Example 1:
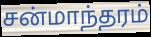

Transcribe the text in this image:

சன்மாந்தரம்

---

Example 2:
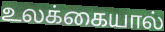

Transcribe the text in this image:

உலக்கையால்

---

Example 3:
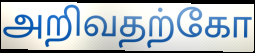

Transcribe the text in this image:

அறிவதற்கோ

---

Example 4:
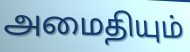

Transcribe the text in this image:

அமைதியும்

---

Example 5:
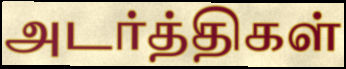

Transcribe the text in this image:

அடர்த்திகள்